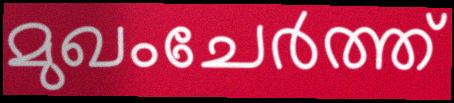
മുഖംചേർത്ത്